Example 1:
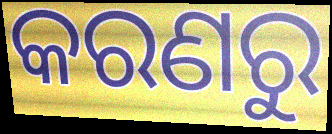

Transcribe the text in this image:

କରଣରୁ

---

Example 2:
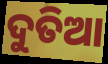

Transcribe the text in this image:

ଦୁତିଆ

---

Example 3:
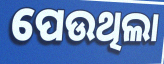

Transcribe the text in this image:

ପେଉଥିଲା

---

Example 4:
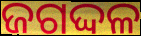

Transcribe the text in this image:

ଜଗଦ୍ଦଳ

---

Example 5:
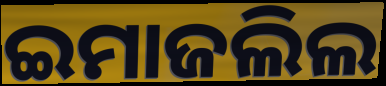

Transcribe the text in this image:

ଇମାଜଲିଲ